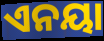
ଏନୟା